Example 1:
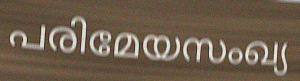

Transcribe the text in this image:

പരിമേയസംഖ്യ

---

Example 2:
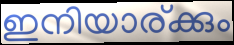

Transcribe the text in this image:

ഇനിയാര്ക്കും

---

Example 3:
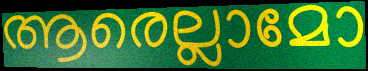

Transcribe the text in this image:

ആരെല്ലാമോ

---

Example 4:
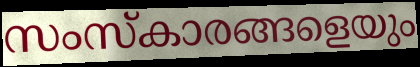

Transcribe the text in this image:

സംസ്കാരങ്ങളെയും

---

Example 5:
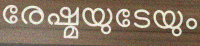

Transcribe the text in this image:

രേഷ്മയുടേയും